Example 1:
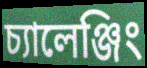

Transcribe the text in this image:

চ্যালেঞ্জিং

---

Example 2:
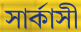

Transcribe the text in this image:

সার্কাসী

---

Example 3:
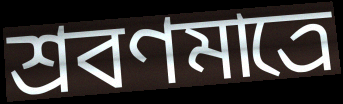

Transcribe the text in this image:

শ্রবণমাত্রে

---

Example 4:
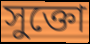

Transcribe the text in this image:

সুক্তো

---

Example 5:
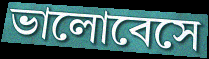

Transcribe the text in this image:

ভালোবেসে